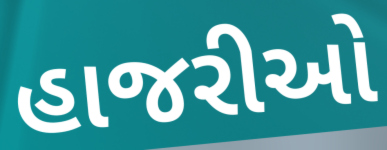
હાજરીઓ